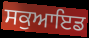
ਸਕੁਆਇਡ